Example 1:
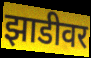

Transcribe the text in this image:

झाडीवर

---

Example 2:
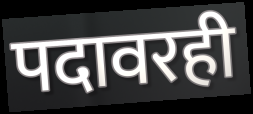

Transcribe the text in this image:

पदावरही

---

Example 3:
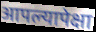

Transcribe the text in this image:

आपल्यापेक्षा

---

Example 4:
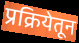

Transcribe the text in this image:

प्रक्रियेतून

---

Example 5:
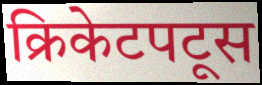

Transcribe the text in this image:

क्रिकेटपटूस